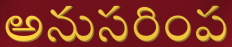
అనుసరింప